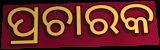
ପ୍ରଚାରକ